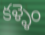
కళ్ళెం